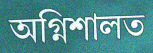
অগ্নিশালত